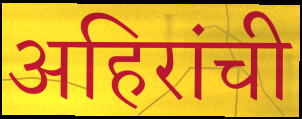
अहिरांची